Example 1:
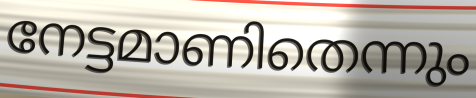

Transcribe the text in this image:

നേട്ടമാണിതെന്നും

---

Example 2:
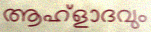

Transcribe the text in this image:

ആഹ്ളാദവും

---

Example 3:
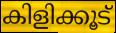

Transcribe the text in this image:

കിളിക്കൂട്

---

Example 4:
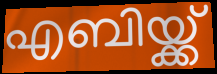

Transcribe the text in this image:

എബിയ്ക്ക്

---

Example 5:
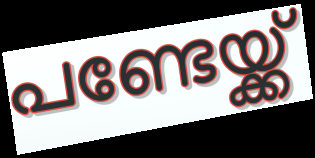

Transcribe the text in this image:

പണ്ടേയ്ക്ക്